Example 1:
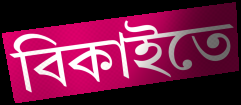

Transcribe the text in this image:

বিকাইতে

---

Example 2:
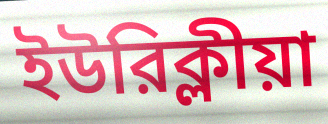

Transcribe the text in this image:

ইউরিক্লীয়া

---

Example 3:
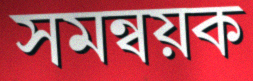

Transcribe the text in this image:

সমন্বয়ক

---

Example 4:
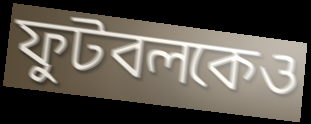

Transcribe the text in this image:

ফুটবলকেও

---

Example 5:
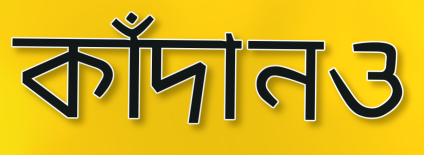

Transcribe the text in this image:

কাঁদানও